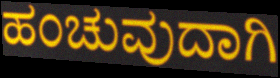
ಹಂಚುವುದಾಗಿ